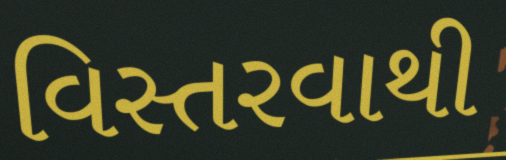
વિસ્તરવાથી